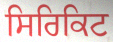
ਸਿਰਿਕਿਟ